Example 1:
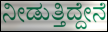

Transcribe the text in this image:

ನೀಡುತ್ತಿದ್ದೇನೆ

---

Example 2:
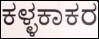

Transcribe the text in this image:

ಕಳ್ಳಕಾಕರ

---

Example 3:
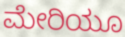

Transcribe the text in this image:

ಮೇರಿಯೂ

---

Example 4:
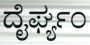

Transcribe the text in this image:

ದೈರ್ಘ್ಯಂ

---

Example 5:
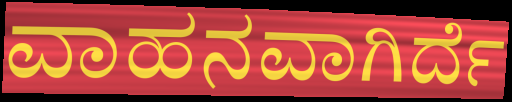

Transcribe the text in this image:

ವಾಹನವಾಗಿರ್ದೆ